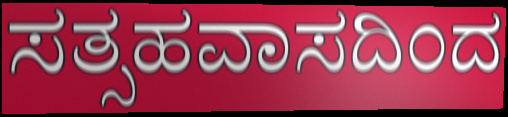
ಸತ್ಸಹವಾಸದಿಂದ